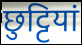
छुट्टियां